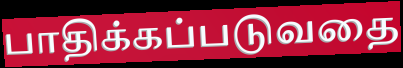
பாதிக்கப்படுவதை